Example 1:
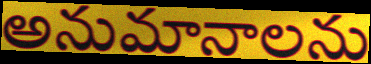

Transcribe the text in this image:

అనుమానాలను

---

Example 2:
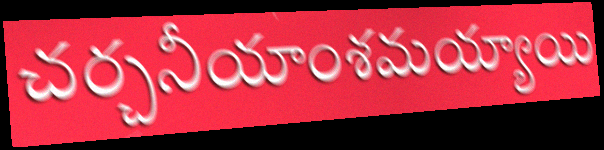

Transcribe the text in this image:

చర్చనీయాంశమయ్యాయి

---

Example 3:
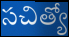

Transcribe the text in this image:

సచిత్యో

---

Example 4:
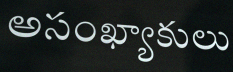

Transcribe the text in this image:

అసంఖ్యాకులు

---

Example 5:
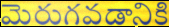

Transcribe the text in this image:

మెరుగవడానికి